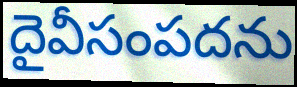
దైవీసంపదను